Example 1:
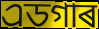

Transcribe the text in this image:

এডগাৰ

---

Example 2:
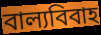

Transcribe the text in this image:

বাল্যবিবাহ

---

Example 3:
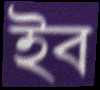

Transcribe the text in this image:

ইব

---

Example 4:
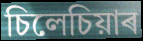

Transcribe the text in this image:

চিলেচিয়াৰ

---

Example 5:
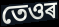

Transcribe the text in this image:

তেওৰ